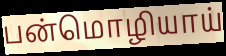
பன்மொழியாய்